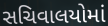
સચિવાલયોમાં